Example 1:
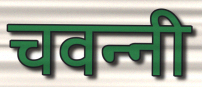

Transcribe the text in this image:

चवन्नी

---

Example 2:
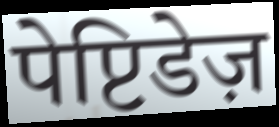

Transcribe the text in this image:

पेप्टिडेज़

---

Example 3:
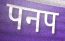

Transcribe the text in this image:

पनप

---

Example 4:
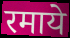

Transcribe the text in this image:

रमाये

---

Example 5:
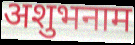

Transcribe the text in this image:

अशुभनाम